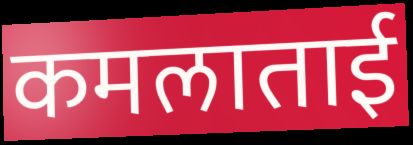
कमलाताई